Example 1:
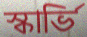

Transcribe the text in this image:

স্কার্ভি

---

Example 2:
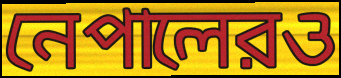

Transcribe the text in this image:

নেপালেরও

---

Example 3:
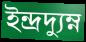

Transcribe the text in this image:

ইন্দ্রদ্যুম্ন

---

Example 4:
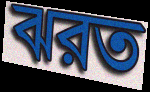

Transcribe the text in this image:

ঝরত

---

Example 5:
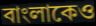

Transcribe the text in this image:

বাংলাকেও